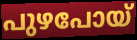
പുഴപോയ്